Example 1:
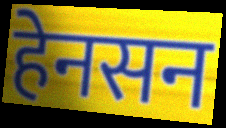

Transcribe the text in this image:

हेनसन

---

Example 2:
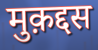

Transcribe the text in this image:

मुक़द्दस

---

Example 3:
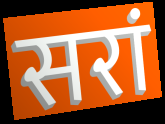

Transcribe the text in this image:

सरां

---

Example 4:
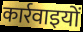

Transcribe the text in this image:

कार्रवाइयों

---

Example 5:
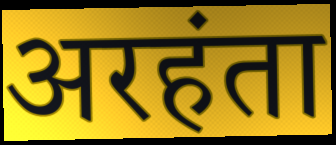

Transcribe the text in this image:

अरहंता